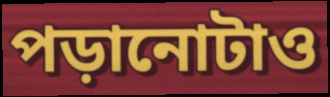
পড়ানোটাও